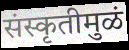
संस्कृतीमुळं